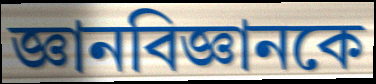
জ্ঞানবিজ্ঞানকে